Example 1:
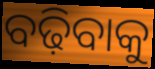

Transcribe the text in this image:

ବଢ଼ିବାକୁ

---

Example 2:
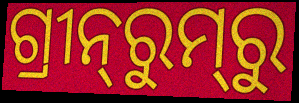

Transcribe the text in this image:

ଗ୍ରୀନ୍‌ରୁମ୍‌ରୁ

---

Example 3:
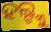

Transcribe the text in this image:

ହଲ୍ଙ୍କୁ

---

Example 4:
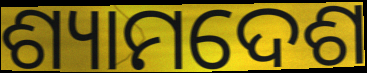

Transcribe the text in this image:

ଶ୍ୟାମଦେଶ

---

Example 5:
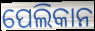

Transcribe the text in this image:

ପେଲିକାନ